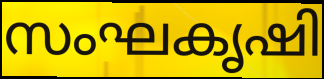
സംഘകൃഷി